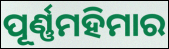
ପୂର୍ଣ୍ଣମହିମାର